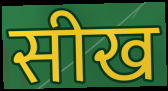
सीख